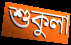
শুকুলা